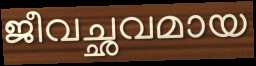
ജീവച്ഛവമായ